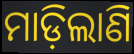
ମାଡ଼ିଲାଣି